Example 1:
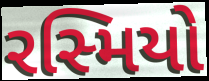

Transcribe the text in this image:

રસ્મિયો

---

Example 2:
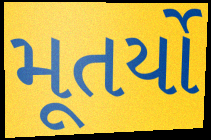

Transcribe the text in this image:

મૂતર્યો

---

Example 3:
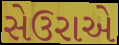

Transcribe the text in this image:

સેઉરાએ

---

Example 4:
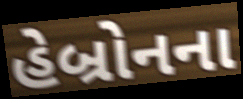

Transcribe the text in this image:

હેબ્રોનના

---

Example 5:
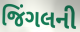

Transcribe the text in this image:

જિંગલની